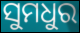
ସୁମଧୁର